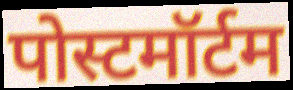
पोस्टमॉर्टम